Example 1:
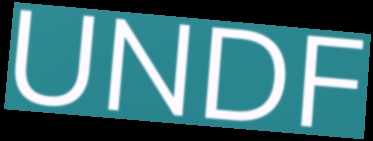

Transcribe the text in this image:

UNDF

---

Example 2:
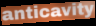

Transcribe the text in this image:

anticavity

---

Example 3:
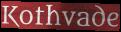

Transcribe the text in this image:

Kothvade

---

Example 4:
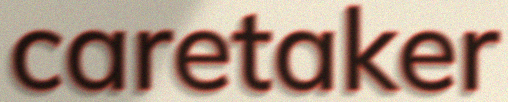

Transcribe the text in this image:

caretaker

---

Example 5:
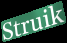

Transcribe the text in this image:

Struik